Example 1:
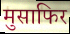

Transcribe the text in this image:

मुसाफिर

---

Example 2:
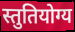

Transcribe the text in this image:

स्तुतियोग्य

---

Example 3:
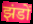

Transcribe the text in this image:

झंडों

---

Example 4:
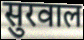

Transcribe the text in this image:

सुरवाल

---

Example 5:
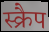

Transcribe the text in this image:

स्क्रैप